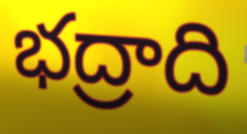
భద్రాది